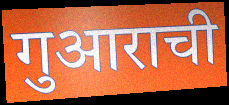
गुआराची